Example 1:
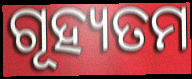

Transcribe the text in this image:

ଗୂହ୍ୟତମ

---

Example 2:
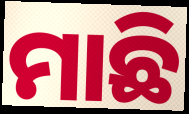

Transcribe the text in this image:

ମାଛି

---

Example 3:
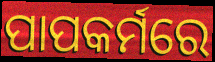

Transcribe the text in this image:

ପାପକର୍ମରେ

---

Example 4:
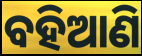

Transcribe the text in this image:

ବହିଆଣି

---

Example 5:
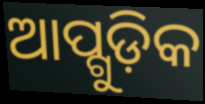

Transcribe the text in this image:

ଆପ୍ଗୁଡ଼ିକ